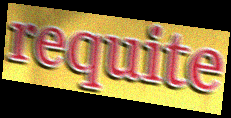
requite